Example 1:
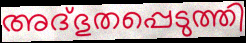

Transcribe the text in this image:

അദ്ഭുതപ്പെടുത്തി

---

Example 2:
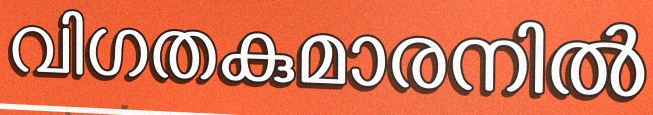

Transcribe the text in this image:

വിഗതകുമാരനിൽ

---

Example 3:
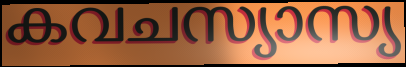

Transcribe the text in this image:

കവചസ്യാസ്യ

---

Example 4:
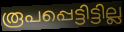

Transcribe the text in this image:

രൂപപ്പെട്ടിട്ടില്ല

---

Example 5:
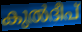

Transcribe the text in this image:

കുൽദീപ്